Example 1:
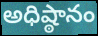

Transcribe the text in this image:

అధిష్ఠానం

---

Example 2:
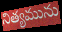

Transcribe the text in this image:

నిత్యమును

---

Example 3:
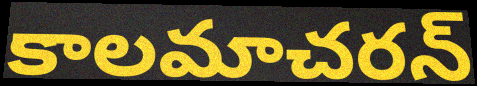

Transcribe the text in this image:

కాలమాచరన్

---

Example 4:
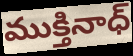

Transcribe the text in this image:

ముక్తినాధ్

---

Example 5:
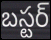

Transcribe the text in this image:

బస్టర్